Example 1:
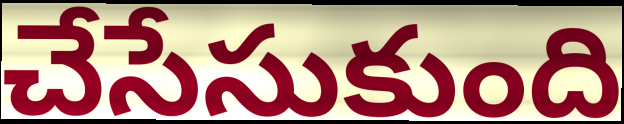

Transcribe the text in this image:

చేసేసుకుంది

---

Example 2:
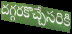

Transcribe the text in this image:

దగ్గరకొచ్చేసరికి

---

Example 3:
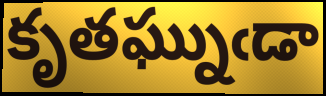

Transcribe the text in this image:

కృతఘ్నుఁడా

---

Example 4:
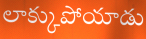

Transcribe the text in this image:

లాక్కుపోయాడు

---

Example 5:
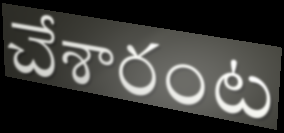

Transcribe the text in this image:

చేశారంట